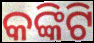
କଙ୍କିଟି